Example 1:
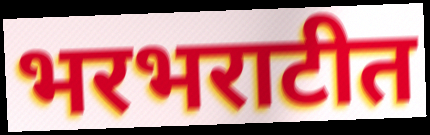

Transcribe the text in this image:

भरभराटीत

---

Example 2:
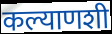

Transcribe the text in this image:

कल्याणशी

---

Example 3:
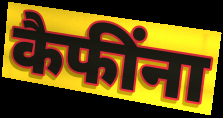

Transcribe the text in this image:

कैफींना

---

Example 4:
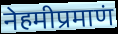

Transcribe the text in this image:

नेहमीप्रमाणं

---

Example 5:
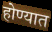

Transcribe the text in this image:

होण्यात